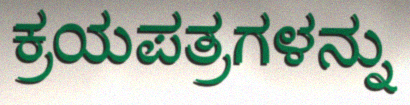
ಕ್ರಯಪತ್ರಗಳನ್ನು